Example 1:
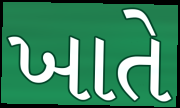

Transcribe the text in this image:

ખાતે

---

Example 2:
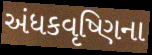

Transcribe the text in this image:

અંધકવૃષ્ણિના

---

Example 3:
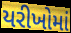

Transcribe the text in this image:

યરીખોમાં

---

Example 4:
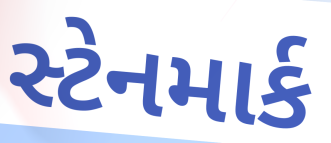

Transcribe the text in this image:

સ્ટેનમાર્ક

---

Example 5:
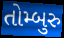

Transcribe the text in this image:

તોમ્બુરુ